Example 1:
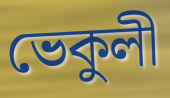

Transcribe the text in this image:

ভেকুলী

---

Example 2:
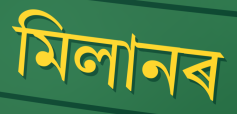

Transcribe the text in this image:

মিলানৰ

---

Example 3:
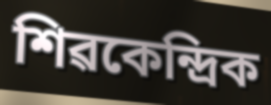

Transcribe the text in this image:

শিৱকেন্দ্ৰিক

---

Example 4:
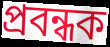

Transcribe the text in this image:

প্ৰবন্ধক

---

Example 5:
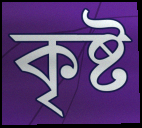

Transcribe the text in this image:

কৃষ্ট